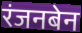
रंजनबेन